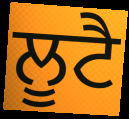
ਲੂਟੈ